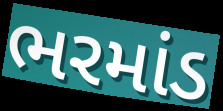
ભરમાંડ